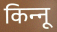
किन्नू